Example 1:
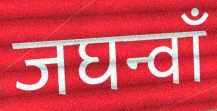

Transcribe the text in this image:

जघन्वाँ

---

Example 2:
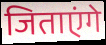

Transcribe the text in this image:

जिताएंगे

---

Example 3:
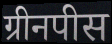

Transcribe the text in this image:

ग्रीनपीस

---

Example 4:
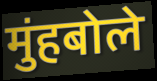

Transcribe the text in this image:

मुंहबोले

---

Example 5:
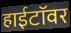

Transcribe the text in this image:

हाईटॉवर